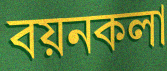
বয়নকলা